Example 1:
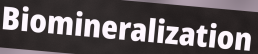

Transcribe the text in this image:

Biomineralization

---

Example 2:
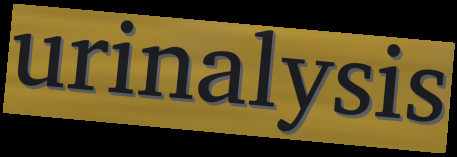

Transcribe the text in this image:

urinalysis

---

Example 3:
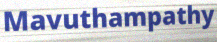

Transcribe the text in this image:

Mavuthampathy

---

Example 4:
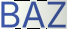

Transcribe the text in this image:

BAZ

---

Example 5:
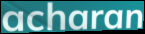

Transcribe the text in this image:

acharan